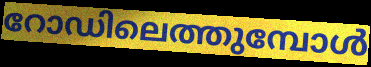
റോഡിലെത്തുമ്പോൾ